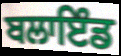
ਬਲਾਇੰਡ